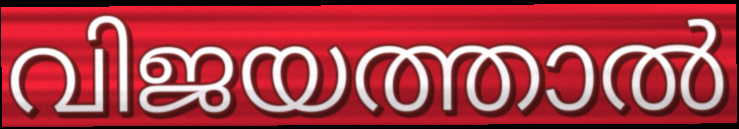
വിജയത്താൽ